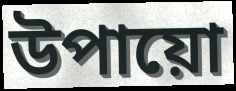
উপায়ো